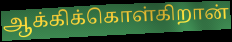
ஆக்கிக்கொள்கிறான்